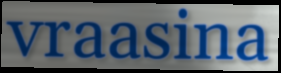
vraasina